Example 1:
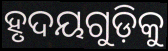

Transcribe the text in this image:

ହୃଦୟଗୁଡ଼ିକୁ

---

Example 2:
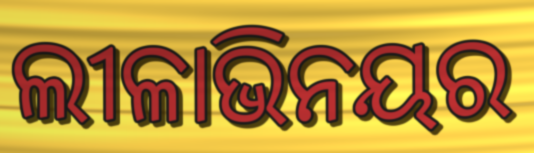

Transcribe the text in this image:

ଲୀଳାଭିନୟର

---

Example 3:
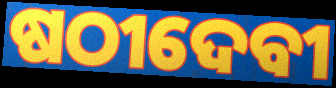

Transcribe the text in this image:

ଷଠୀଦେବୀ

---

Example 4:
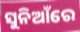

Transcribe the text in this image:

ସୁନିଆଁରେ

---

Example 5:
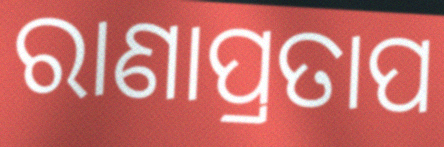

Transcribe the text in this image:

ରାଣାପ୍ରତାପ